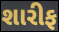
શારીફ